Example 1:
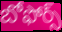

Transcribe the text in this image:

బోఫోర్స్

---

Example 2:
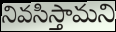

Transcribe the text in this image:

నివసిస్తామని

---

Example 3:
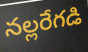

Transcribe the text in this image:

నల్లరేగడి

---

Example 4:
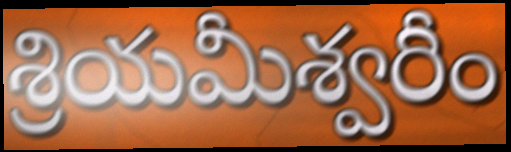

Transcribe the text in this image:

శ్రియమీశ్వరీం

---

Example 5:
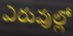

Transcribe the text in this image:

ఎరువుల్లో